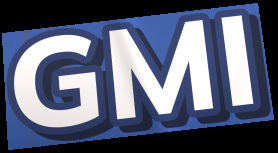
GMI